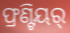
ଫ୍ରଣ୍ଟିୟର୍